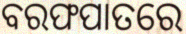
ବରଫପାତରେ